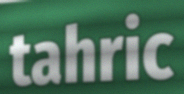
tahric